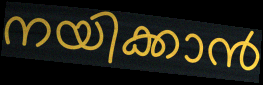
നയിക്കാൻ